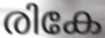
രികേ